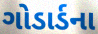
ગોડાર્ડના